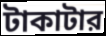
টাকাটার